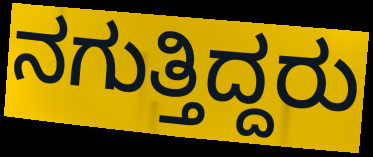
ನಗುತ್ತಿದ್ದರು